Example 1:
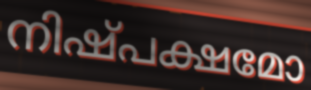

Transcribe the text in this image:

നിഷ്പക്ഷമോ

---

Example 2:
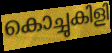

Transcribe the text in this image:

കൊച്ചുകിളി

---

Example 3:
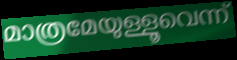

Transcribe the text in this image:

മാത്രമേയുള്ളൂവെന്ന്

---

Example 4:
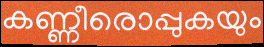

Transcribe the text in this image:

കണ്ണീരൊപ്പുകയും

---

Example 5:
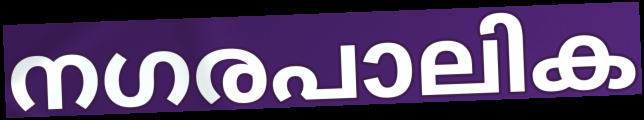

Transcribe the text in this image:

നഗരപാലിക